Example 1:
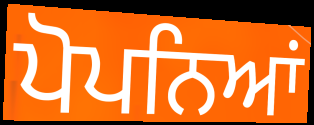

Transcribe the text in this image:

ਪੋਪਨਿਆਂ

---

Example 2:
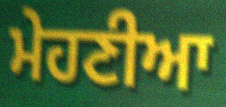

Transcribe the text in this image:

ਮੇਹਣੀਆ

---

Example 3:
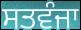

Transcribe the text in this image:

ਸਤਵੰਜਾ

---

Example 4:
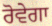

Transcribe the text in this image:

ਰੋਵੇਗਾ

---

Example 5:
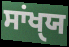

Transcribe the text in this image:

ਸਾਂਖੑਯ